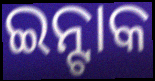
ଇନ୍ଟାକ